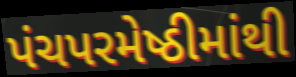
પંચપરમેષ્ઠીમાંથી